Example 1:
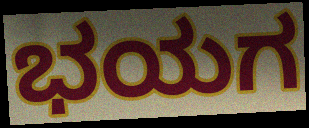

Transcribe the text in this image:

ಭಯಗ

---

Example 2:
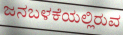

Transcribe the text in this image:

ಜನಬಳಕೆಯಲ್ಲಿರುವ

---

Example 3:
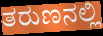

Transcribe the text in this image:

ತರುಣನಲ್ಲಿ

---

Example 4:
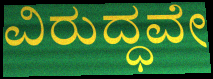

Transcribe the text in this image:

ವಿರುದ್ಧವೇ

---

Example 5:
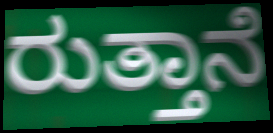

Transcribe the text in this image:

ರುತ್ತಾನೆ